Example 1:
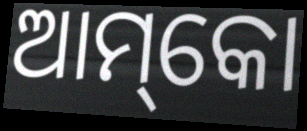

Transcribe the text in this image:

ଆମ୍‌କୋ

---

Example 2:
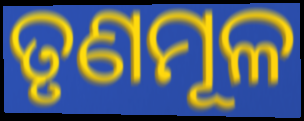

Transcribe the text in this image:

ତୃଣମୂଳ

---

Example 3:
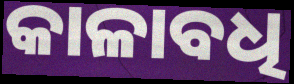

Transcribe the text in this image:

କାଳାବଧି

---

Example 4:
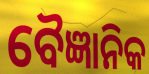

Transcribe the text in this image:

ବୈଜ୍ଞାନିକ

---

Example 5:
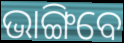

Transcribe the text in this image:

ଭାଙ୍ଗିବେ